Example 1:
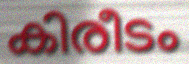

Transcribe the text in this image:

കിരീടം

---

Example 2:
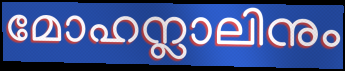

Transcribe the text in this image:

മോഹന്ലാലിനും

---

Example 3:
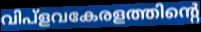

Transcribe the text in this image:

വിപ്ളവകേരളത്തിന്റെ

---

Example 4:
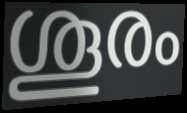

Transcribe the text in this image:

ശൂരം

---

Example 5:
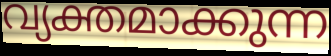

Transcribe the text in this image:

വ്യക്തമാക്കുന്ന